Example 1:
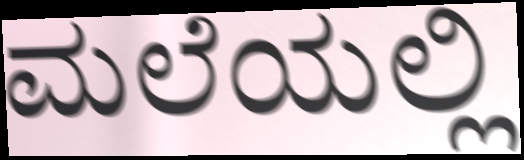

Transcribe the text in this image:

ಮಲೆಯಲ್ಲಿ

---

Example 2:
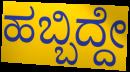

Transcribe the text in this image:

ಹಬ್ಬಿದ್ದೇ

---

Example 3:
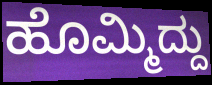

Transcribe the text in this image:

ಹೊಮ್ಮಿದ್ದು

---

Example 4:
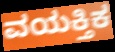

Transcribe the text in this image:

ವಯಕ್ತಿಕ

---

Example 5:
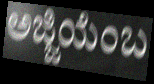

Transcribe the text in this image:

ಅಜ್ಜಿಯೆಂಬ